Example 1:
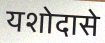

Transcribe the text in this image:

यशोदासे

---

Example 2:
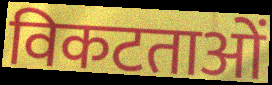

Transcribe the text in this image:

विकटताओं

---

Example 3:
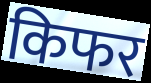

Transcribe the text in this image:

किफर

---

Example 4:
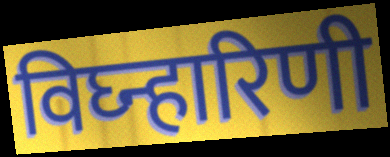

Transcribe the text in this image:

विघ्न्हारिणी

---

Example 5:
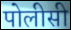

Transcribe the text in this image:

पोलीसी